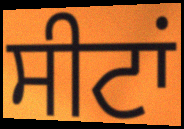
ਸੀਟਾਂ